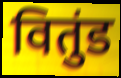
वितुंड